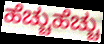
ಹೆಚ್ಚುಹೆಚ್ಚು